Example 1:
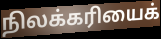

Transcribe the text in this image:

நிலக்கரியைக்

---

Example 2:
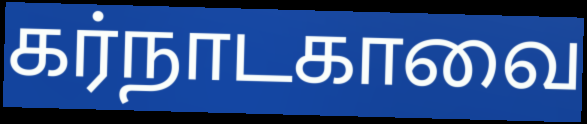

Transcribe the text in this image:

கர்நாடகாவை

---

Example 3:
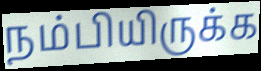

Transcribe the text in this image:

நம்பியிருக்க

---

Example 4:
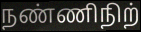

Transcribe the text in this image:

நண்ணிநிற்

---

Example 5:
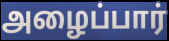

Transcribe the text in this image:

அழைப்பார்